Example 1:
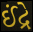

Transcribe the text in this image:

ઈંદ્રે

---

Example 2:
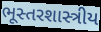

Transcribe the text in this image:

ભૂસ્તરશાસ્ત્રીય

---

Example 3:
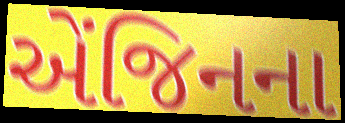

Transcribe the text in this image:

એંજિનના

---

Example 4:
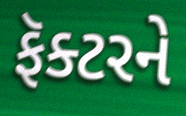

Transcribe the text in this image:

ફૅક્ટરને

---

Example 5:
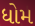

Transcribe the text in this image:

ધોમ